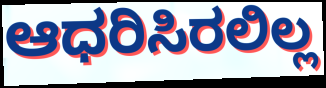
ಆಧರಿಸಿರಲಿಲ್ಲ